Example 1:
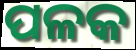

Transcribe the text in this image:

ପଳକ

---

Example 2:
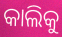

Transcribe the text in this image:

କାଲିକୁ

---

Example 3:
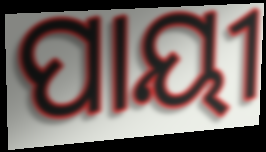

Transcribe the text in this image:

ପାୟୀ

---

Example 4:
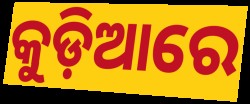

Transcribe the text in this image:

କୁଡ଼ିଆରେ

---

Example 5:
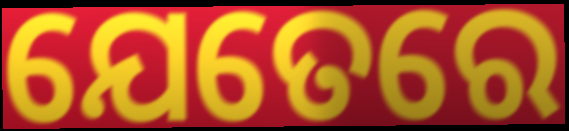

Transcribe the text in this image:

ଯେତେରେ